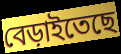
বেড়াইতেছে